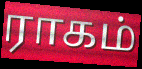
ராகம்